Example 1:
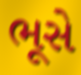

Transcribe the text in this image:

ભૂસે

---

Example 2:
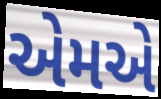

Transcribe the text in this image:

એમએ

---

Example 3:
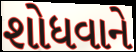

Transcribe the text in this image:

શોધવાને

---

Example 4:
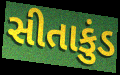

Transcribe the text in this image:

સીતાકુંડ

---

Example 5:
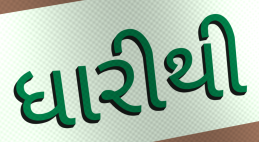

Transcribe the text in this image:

ધારીથી